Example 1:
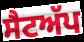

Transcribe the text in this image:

ਸੈਟਅੱਪ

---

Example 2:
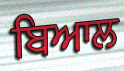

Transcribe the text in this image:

ਬਿਆਲ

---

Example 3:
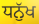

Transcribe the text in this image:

ਧਨੁੱਖ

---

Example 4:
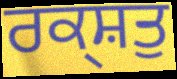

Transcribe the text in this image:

ਰਕ੍ਸ਼ਤੁ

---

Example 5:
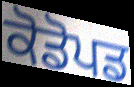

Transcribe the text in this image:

ਕੋਡੋਪਡ